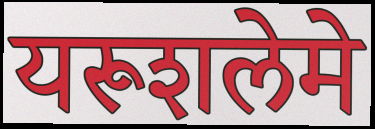
यरूशलेमे